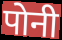
पोनी